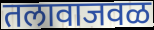
तलावाजवळ